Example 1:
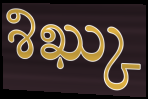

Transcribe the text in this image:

శిఖ్కు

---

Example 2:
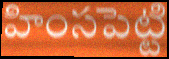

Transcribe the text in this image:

హింసపెట్టి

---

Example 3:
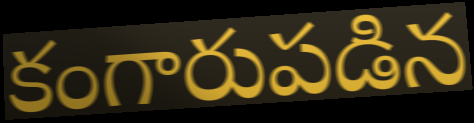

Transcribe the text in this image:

కంగారుపడిన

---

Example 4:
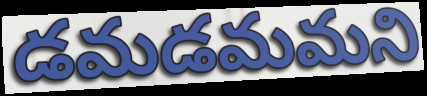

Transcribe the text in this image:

డమడమమని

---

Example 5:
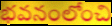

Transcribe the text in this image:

భవనంలోంచి